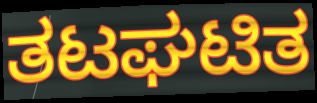
ತಟಘಟಿತ